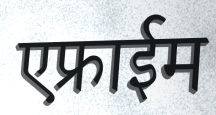
एफ्राईम